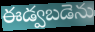
ఈడ్వబడెను